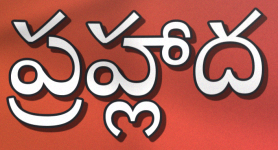
ప్రహ్లాద